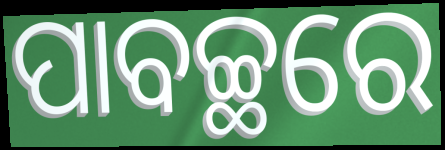
ପାବଚ୍ଛରେ